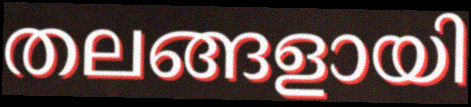
തലങ്ങളായി